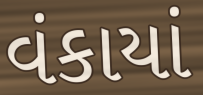
વંકાયાં